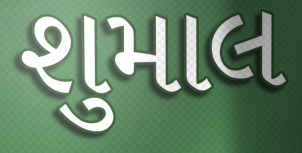
શુમાલ